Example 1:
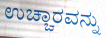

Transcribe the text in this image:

ಉಚ್ಚಾರವನ್ನು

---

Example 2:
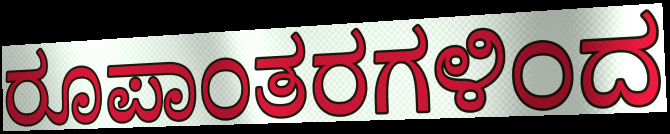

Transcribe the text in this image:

ರೂಪಾಂತರಗಳಿಂದ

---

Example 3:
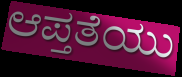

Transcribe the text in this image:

ಆಪ್ತತೆಯು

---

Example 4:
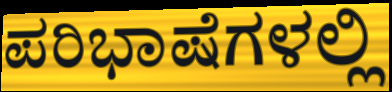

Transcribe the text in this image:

ಪರಿಭಾಷೆಗಳಲ್ಲಿ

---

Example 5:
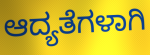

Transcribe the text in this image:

ಆದ್ಯತೆಗಳಾಗಿ